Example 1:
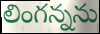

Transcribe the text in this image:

లింగన్నను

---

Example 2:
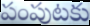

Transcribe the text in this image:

పంపుటకు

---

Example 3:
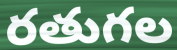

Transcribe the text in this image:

రతుగల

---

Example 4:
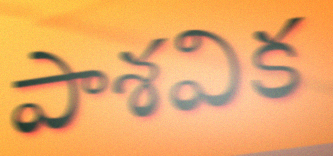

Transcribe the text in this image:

పాశవిక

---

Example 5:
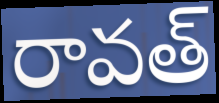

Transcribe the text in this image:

రావత్